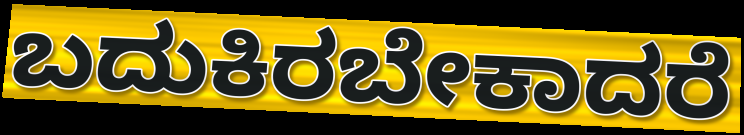
ಬದುಕಿರಬೇಕಾದರೆ